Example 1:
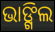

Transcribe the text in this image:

ଭାଙ୍ଗିଲ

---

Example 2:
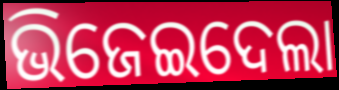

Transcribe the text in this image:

ଭିଜେଇଦେଲା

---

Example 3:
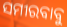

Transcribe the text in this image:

ସମୀରବାବୁ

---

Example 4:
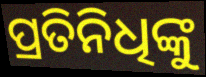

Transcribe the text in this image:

ପ୍ରତିନିଧିଙ୍କୁ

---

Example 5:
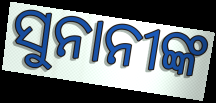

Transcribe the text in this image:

ସୁନାନୀଙ୍କ